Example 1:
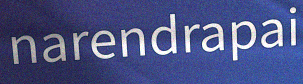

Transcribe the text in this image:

narendrapai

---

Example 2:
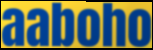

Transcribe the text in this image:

aaboho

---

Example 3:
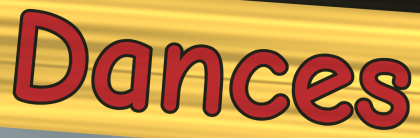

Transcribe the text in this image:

Dances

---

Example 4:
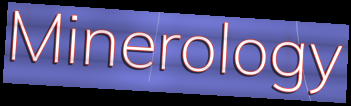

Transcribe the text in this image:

Minerology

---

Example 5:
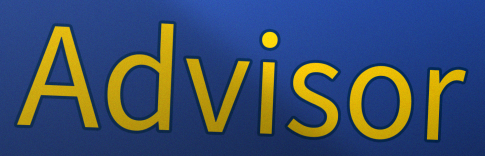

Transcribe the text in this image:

Advisor